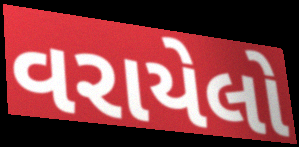
વરાયેલો